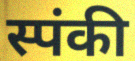
स्पंकी